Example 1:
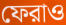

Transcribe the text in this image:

ফেরাও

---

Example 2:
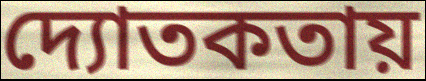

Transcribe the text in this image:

দ্যোতকতায়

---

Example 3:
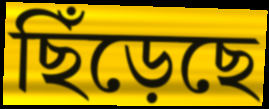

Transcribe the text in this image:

ছিঁড়েছে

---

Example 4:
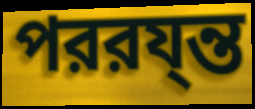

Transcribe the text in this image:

পররয্ন্ত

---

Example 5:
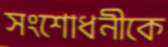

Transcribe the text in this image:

সংশোধনীকে